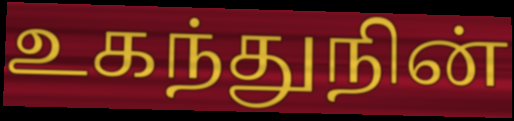
உகந்துநின்